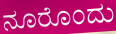
ನೂರೊಂದು